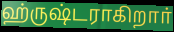
ஹ்ருஷ்டராகிறார்